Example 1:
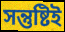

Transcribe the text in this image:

সন্তুষ্টিই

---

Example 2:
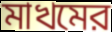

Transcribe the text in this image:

মাখমের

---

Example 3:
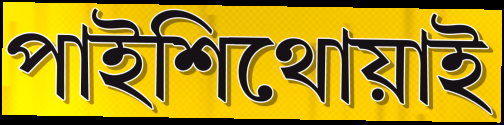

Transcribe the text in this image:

পাইশিথোয়াই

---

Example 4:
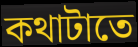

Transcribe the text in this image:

কথাটাতে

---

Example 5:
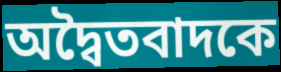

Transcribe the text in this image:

অদ্বৈতবাদকে